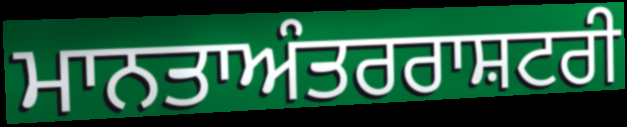
ਮਾਨਤਾਅੰਤਰਰਾਸ਼ਟਰੀ